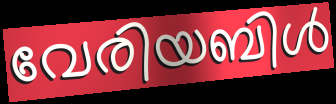
വേരിയബിൾ